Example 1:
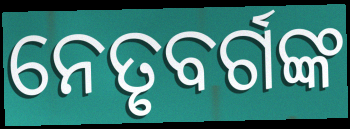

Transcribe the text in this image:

ନେତୃବର୍ଗଙ୍କ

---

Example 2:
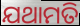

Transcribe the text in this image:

ଯଥାମତି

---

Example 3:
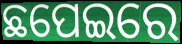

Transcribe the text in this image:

ଛପେଇରେ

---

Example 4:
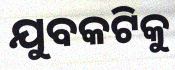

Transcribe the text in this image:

ଯୁବକଟିକୁ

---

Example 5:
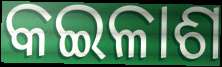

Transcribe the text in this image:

କଇଳାଶ